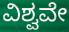
ವಿಶ್ವವೇ